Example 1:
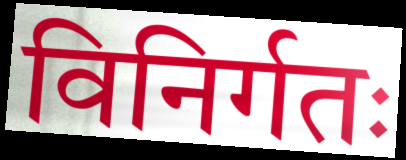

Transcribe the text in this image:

विनिर्गतः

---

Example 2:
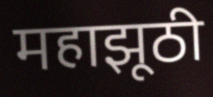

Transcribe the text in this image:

महाझूठी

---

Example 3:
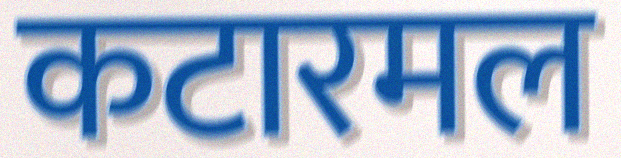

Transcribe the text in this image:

कटारमल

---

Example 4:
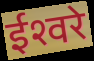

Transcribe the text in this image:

ईश्वरे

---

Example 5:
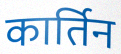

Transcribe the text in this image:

कार्तिन